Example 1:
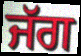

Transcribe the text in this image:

ਜੱਗ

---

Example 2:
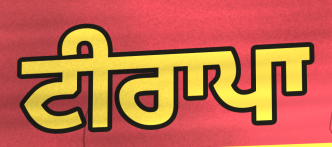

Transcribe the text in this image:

ਟੀਰਾਪਾ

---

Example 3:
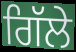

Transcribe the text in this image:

ਗਿੱਲੇ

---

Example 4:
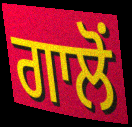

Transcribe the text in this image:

ਗਾਲੋਂ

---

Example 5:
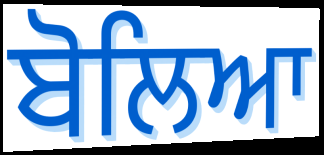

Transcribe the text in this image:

ਬੋਲਿਆ